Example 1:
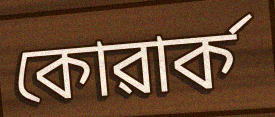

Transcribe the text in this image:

কোৱাৰ্ক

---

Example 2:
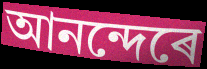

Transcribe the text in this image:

আনন্দেৰে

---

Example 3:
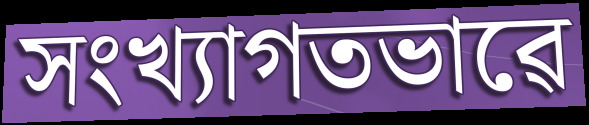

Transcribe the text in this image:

সংখ্যাগতভাৱে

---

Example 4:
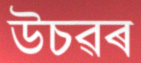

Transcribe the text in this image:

উচৱৰ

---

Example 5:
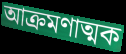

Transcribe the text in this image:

আক্ৰমণাত্মক